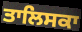
ਤਾਲਿਸਕਾ